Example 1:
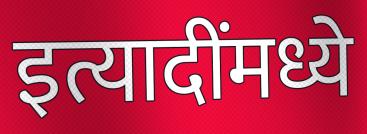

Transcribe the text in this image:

इत्यादींमध्ये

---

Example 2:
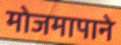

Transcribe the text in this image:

मोजमापाने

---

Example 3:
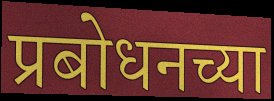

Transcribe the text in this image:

प्रबोधनच्या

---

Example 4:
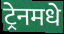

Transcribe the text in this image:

ट्रेनमधे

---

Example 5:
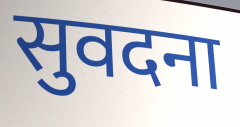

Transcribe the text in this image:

सुवदना